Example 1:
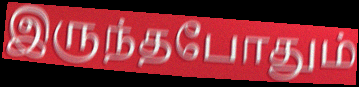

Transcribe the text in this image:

இருந்தபோதும்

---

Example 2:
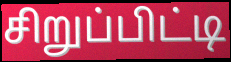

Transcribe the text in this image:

சிறுப்பிட்டி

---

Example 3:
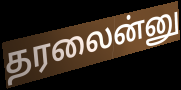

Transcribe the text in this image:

தரலைன்னு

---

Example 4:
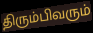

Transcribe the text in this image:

திரும்பிவரும்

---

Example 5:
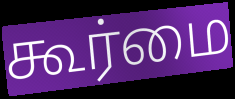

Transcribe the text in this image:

கூர்மை